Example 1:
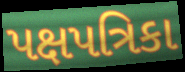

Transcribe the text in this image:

પક્ષપત્રિકા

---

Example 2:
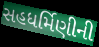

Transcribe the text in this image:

સહધર્મિણીની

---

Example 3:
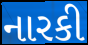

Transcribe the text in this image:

નારકી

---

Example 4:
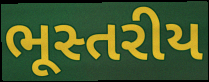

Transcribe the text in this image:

ભૂસ્તરીય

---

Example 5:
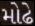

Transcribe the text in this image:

મોઢે